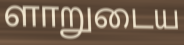
ளாறுடைய